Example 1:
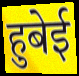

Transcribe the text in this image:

हुबेई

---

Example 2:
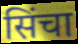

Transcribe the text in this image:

सिंचा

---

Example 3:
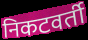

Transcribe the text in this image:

निकटवर्ती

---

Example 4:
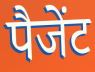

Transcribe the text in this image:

पैजेंट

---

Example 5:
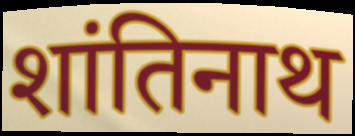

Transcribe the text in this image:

शांतिनाथ